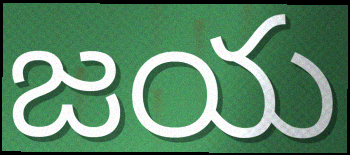
జయ